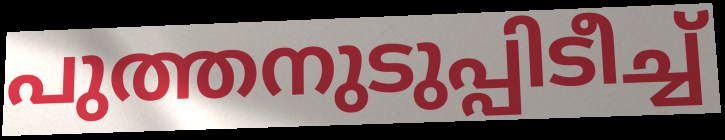
പുത്തനുടുപ്പിടീച്ച്